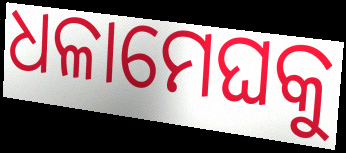
ଧଳାମେଘକୁ